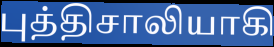
புத்திசாலியாகி